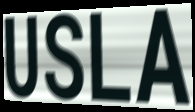
USLA